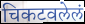
चिकटवलेलं